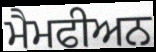
ਮੈਮਫੀਅਨ